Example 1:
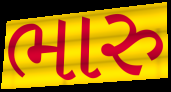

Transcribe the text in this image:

ભારુ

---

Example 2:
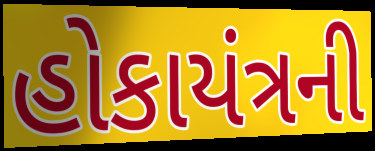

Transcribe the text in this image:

હોકાયંત્રની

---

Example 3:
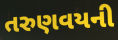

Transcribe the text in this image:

તરુણવયની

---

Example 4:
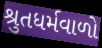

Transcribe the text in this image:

શ્રુતધર્મવાળો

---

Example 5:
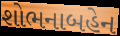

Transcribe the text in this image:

શોભનાબહેન